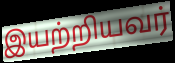
இயற்றியவர்